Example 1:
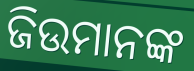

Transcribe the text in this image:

ଜିଉମାନଙ୍କ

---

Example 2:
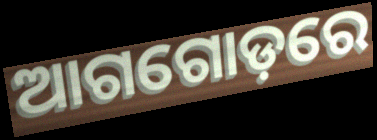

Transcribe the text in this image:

ଆଗଗୋଡ଼ରେ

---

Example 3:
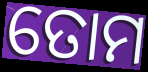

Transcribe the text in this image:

ତୋମ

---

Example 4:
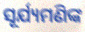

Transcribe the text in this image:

ସୂର୍ଯ୍ୟମଣିଙ୍କ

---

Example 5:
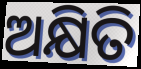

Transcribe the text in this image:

ଅକ୍ଷିତି